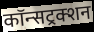
कॉन्सट्रक्शन